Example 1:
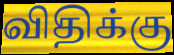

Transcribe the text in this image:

விதிக்கு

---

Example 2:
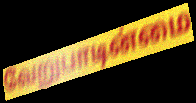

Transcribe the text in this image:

வேறுபாடின்மை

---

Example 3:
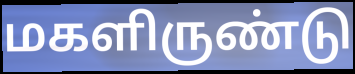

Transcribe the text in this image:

மகளிருண்டு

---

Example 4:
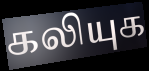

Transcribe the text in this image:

கலியுக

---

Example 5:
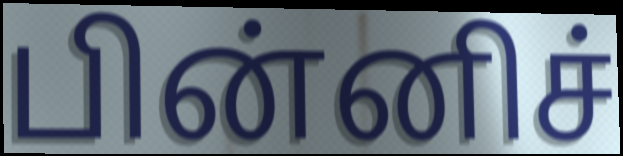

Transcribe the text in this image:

பின்னிச்